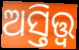
ଅସ୍ତିତ୍ତ୍ବ